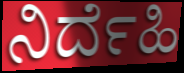
ನಿರ್ದೆಹಿ